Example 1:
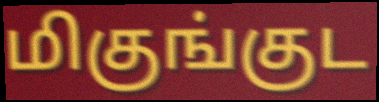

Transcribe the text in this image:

மிகுங்குட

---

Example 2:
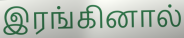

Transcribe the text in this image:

இரங்கினால்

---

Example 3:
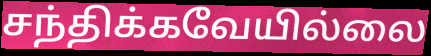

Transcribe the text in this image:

சந்திக்கவேயில்லை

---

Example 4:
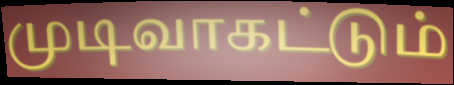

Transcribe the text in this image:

முடிவாகட்டும்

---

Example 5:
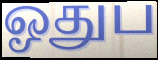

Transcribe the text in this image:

ஓதுப